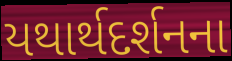
યથાર્થદર્શનના